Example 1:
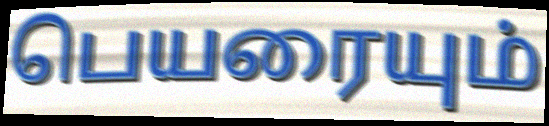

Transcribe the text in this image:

பெயரையும்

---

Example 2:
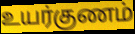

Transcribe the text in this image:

உயர்குணம்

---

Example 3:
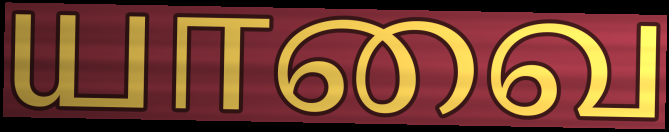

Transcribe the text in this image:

யாவை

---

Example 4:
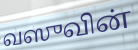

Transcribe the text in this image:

வஸுவின்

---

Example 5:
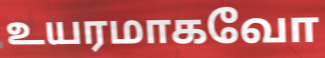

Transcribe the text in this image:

உயரமாகவோ